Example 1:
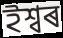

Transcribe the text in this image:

ইশ্বৰ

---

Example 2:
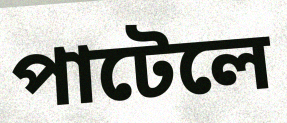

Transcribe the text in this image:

পাটেলে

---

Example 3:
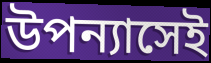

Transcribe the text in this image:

উপন্যাসেই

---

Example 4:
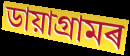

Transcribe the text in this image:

ডায়াগ্ৰামৰ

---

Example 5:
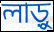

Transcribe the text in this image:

লাড়ু